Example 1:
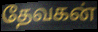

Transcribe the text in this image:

தேவகன்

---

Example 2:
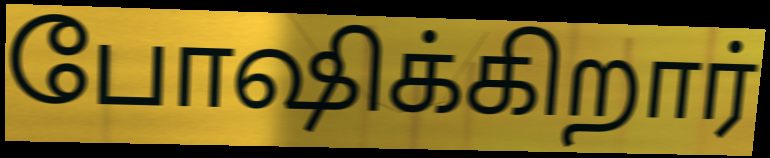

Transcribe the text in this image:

போஷிக்கிறார்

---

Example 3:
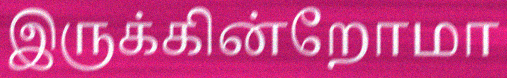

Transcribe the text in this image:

இருக்கின்றோமா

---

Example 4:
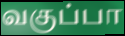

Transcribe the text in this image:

வகுப்பா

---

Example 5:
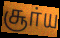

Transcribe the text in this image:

சூர்ய